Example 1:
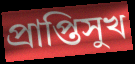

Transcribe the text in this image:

প্রাপ্তিসুখ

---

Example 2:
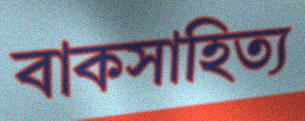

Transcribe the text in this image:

বাকসাহিত্য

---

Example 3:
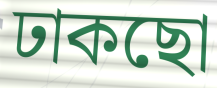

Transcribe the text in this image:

ঢাকছো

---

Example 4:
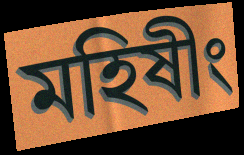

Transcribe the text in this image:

মহিষীং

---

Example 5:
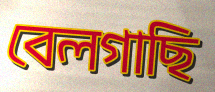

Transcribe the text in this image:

বেলগাছি